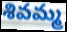
శివమ్మ